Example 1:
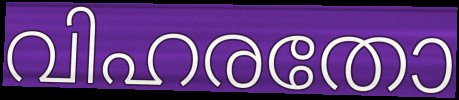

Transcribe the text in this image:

വിഹരതോ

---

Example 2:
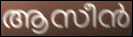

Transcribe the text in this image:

ആസീൻ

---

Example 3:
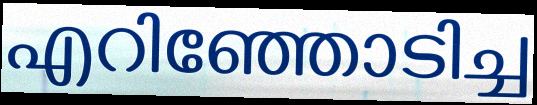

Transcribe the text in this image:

എറിഞ്ഞോടിച്ച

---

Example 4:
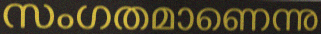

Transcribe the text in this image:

സംഗതമാണെന്നു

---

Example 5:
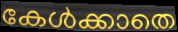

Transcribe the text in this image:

കേൾക്കാതെ